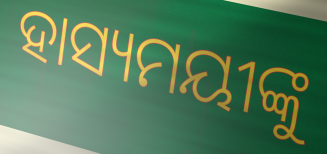
ହାସ୍ୟମୟୀଙ୍କୁ